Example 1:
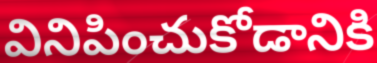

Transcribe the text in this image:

వినిపించుకోడానికి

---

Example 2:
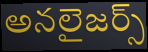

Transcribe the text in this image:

అనలైజర్స్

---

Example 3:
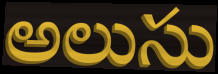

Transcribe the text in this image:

అలుసు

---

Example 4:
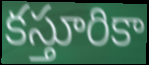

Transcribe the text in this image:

కస్తూరికా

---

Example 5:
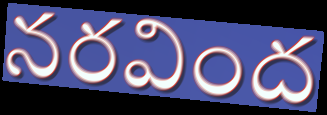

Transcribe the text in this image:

నరవింద